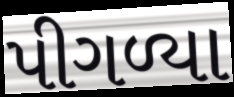
પીગળ્યા